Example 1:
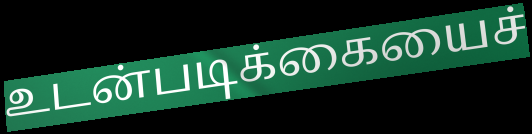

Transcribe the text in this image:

உடன்படிக்கையைச்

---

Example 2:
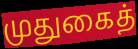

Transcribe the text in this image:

முதுகைத்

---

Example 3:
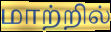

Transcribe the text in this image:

மாற்றில்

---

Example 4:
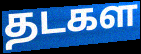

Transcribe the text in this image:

தடகள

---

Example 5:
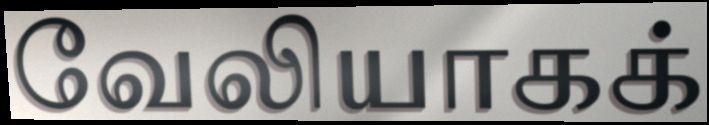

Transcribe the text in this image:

வேலியாகக்